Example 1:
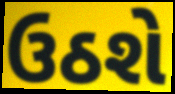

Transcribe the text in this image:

ઉઠશે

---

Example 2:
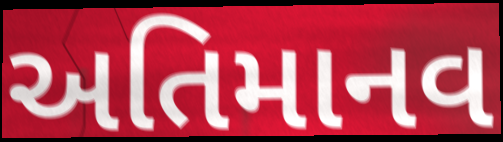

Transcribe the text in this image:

અતિમાનવ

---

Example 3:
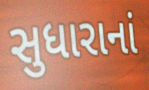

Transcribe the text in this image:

સુધારાનાં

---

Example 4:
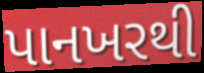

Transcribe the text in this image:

પાનખરથી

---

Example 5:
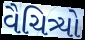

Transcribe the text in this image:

વૈચિત્ર્યો